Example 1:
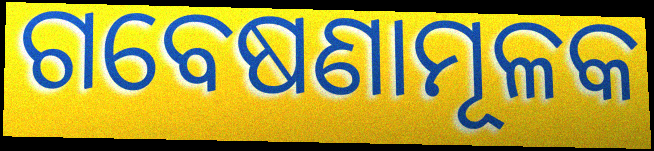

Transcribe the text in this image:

ଗବେଷଣାମୂଳକ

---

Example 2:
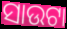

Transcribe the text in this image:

ସାଉଟା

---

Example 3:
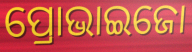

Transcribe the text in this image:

ପ୍ରୋଭାଇଜୋ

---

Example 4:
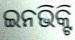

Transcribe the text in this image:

ଇନଭିକ୍ଟି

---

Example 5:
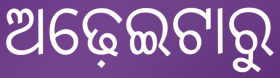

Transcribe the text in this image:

ଅଢ଼େଇଟାରୁ